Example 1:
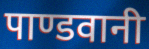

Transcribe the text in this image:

पाण्डवानी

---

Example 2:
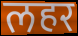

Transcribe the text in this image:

लहर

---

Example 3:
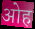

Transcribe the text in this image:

ओह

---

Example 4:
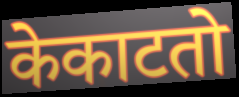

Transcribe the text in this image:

केकाटतो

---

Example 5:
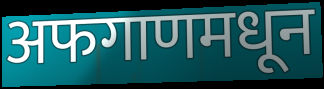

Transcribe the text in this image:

अफगाणमधून